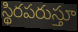
స్థిరపరుస్తూ